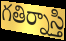
గతిర్నాస్తి